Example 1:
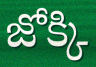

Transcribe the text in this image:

జోక్కి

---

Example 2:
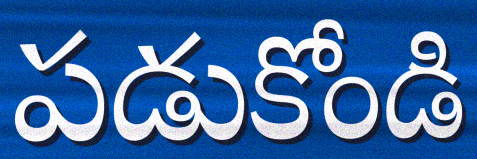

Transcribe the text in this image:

పడుకోండి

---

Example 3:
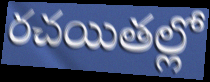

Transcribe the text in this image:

రచయితల్లో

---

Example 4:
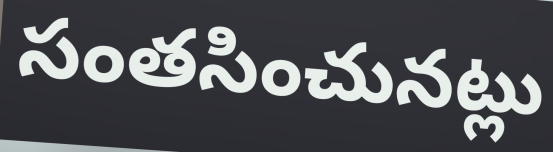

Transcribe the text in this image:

సంతసించునట్లు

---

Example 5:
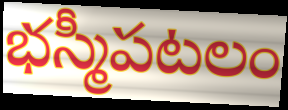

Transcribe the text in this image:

భస్మీపటలం